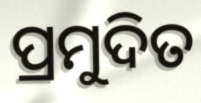
ପ୍ରମୁଦିତ